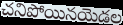
చనిపోయినయెడల